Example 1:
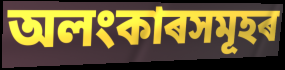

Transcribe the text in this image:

অলংকাৰসমূহৰ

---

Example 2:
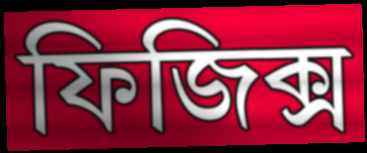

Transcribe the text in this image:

ফিজিক্স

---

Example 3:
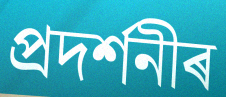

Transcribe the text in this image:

প্ৰদৰ্শনীৰ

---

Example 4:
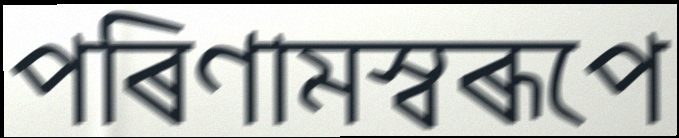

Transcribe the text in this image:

পৰিণামস্বৰূপে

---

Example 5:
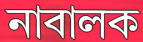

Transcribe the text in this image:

নাবালক